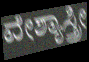
ವೇಶ್ಯಾಸ್ತ್ರೀ